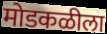
मोडकळीला